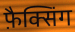
फ़ैक्सिंग